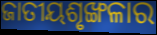
ଜାତୀୟଶୃଙ୍ଖଳାର